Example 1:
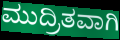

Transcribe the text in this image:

ಮುದ್ರಿತವಾಗಿ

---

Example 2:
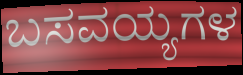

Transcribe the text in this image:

ಬಸವಯ್ಯಗಳ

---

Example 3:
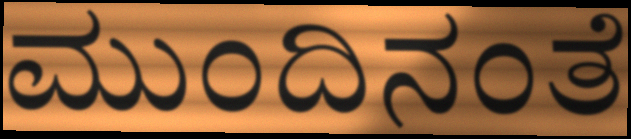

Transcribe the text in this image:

ಮುಂದಿನಂತೆ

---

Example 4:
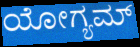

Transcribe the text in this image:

ಯೋಗ್ಯಮ್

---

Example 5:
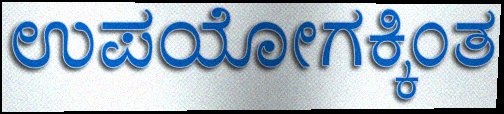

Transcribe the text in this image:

ಉಪಯೋಗಕ್ಕಿಂತ